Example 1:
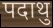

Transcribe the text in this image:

पदाथु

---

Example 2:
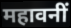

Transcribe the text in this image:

महावनीं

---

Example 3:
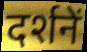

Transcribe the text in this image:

दर्शनें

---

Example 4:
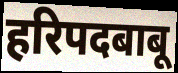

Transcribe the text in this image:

हरिपदबाबू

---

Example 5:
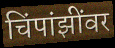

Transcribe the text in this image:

चिंपांझींवर